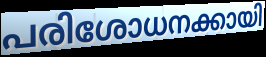
പരിശോധനക്കായി